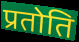
प्रतोति